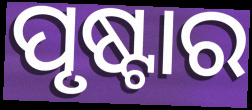
ପୃଷ୍ଟାର